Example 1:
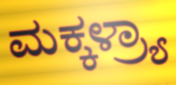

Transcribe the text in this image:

ಮಕ್ಕಳ್ರ್ಯಾ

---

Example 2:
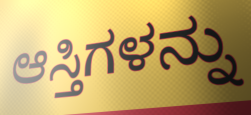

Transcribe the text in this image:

ಆಸ್ತಿಗಳನ್ನು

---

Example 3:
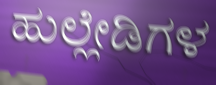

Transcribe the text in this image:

ಹುಲ್ಲೇಡಿಗಳ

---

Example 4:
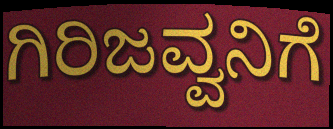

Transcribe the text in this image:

ಗಿರಿಜವ್ವನಿಗೆ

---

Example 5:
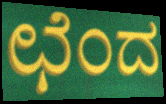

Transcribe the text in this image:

ಛೆಂದ